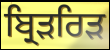
ਬ੍ਰਿੜਰਿੜ